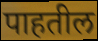
पाहतील